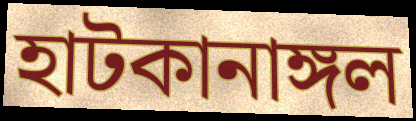
হাটকানাঙ্গল